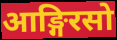
आङ्गिरसो